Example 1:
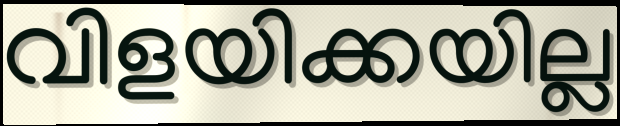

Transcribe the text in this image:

വിളയിക്കയില്ല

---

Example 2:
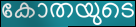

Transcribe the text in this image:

കോതയുടെ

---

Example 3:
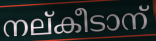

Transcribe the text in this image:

നല്കീടാന്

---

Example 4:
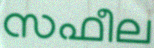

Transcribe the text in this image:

സഫീല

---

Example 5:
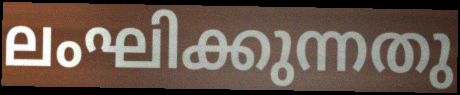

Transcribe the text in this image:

ലംഘിക്കുന്നതു